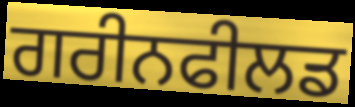
ਗਰੀਨਫੀਲਡ